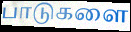
பாடுகளை